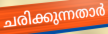
ചരിക്കുന്നതാർ